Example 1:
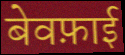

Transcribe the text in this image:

बेवफ़ाई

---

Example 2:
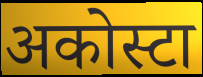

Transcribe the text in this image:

अकोस्टा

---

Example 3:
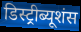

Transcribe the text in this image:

डिस्ट्रीब्यूशंस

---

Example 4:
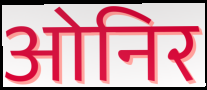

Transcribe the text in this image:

ओनिर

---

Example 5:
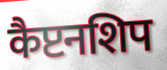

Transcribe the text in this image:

कैप्टनशिप